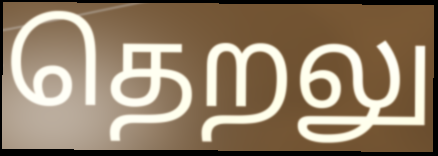
தெறலு